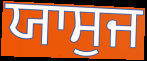
ਯਾਸੁਜ